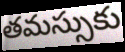
తమస్సుకు